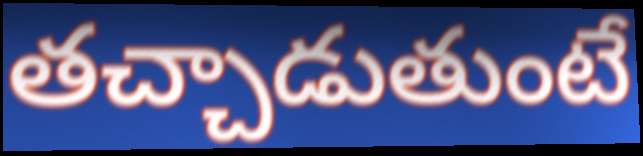
తచ్చాడుతుంటే